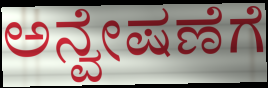
ಅನ್ವೇಷಣೆಗೆ